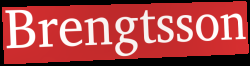
Brengtsson